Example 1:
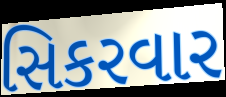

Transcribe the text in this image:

સિકરવાર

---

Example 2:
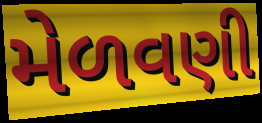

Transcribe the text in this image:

મેળવણી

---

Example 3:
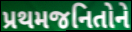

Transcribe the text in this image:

પ્રથમજનિતોને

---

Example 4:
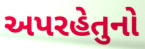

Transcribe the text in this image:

અપરહેતુનો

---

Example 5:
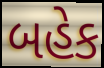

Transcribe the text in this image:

બહેક